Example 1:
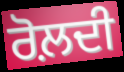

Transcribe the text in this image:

ਰੋਲ਼ਦੀ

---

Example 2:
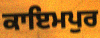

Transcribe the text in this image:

ਕਾਇਮਪੁਰ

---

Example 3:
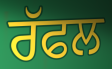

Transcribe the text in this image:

ਰੱਫਲ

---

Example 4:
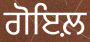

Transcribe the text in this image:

ਗੋਇਲ਼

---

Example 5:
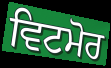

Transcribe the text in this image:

ਵਿਟਮੋਰ